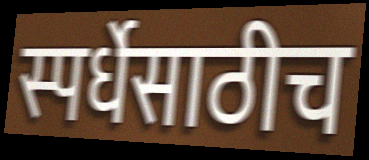
स्पर्धेसाठीच